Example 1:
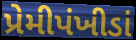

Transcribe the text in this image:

પ્રેમીપંખીડાં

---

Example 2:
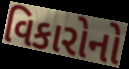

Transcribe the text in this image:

વિકારોનો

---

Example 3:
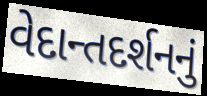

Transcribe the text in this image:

વેદાન્તદર્શનનું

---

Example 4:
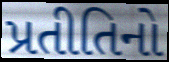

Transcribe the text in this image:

પ્રતીતિનો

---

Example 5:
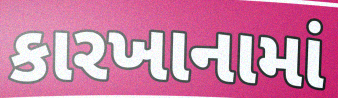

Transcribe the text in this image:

કારખાનામાં